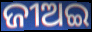
ଜୀଅଇ